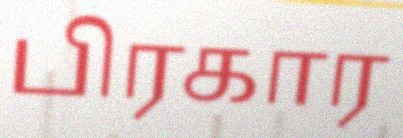
பிரகார